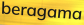
beragama